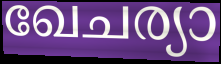
ഖേചര്യാ